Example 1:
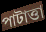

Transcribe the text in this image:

পাটাত্তা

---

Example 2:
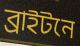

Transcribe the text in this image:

ব্রাইটনে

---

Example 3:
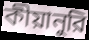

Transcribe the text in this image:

কীয়ানুরি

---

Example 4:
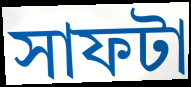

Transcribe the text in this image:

সাফটা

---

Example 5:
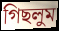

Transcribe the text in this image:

গিছলুম